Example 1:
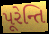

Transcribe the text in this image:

પૂરેન્તિ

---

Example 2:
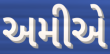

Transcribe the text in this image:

અમીએ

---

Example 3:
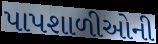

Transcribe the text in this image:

પાપશાળીઓની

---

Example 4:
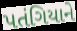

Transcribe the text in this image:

પતંગિયાને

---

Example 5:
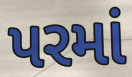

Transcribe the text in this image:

પરમાં